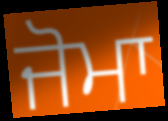
ਜੋਮਾ